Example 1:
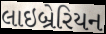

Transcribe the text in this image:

લાઇબ્રેરિયન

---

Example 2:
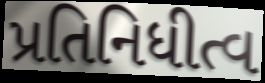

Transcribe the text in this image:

પ્રતિનિધીત્વ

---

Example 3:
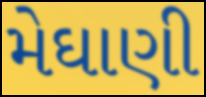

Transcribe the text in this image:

મેઘાણી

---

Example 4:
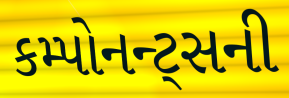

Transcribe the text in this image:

કમ્પોનન્ટ્સની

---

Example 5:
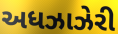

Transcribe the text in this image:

અધઝાઝેરી